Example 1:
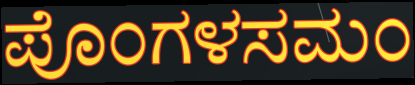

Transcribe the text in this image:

ಪೊಂಗಳಸಮಂ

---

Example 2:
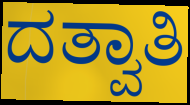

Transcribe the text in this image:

ದತ್ವಾತಿ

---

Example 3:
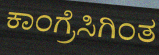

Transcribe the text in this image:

ಕಾಂಗ್ರೆಸಿಗಿಂತ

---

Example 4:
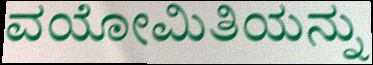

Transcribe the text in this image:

ವಯೋಮಿತಿಯನ್ನು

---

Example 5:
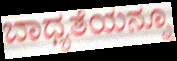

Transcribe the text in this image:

ಬಾಧ್ಯತೆಯನ್ನೂ